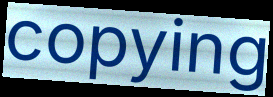
copying